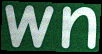
wn